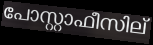
പോസ്റ്റാഫീസില്